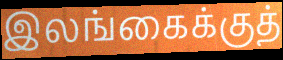
இலங்கைக்குத்